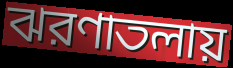
ঝরণাতলায়